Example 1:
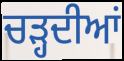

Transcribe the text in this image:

ਚੜ੍ਹਦੀਆਂ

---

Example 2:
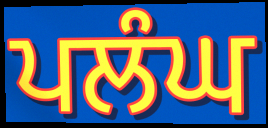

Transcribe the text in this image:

ਪਲੰਘ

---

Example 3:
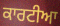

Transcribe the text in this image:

ਕਾਰਟੀਆ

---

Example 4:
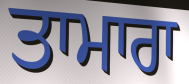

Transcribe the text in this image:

ਤਾਮਾਰਾ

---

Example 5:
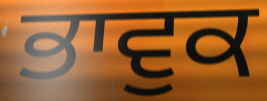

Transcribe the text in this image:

ਭਾਵੁਕ